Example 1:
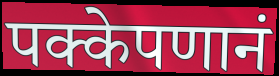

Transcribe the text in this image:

पक्केपणानं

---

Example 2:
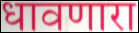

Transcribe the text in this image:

धावणारा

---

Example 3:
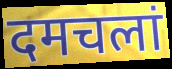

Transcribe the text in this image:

दमचलां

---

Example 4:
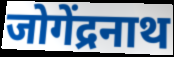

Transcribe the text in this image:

जोगेंद्रनाथ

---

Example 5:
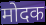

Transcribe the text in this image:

मोदक